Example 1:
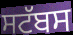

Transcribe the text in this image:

ਸਟੱਬਸ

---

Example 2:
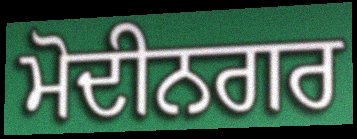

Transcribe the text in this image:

ਮੋਦੀਨਗਰ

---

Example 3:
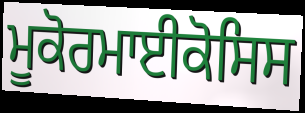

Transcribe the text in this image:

ਮੂਕੋਰਮਾਈਕੋਸਿਸ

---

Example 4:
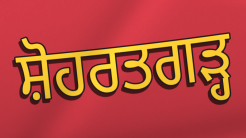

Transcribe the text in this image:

ਸ਼ੋਹਰਤਗੜ੍ਹ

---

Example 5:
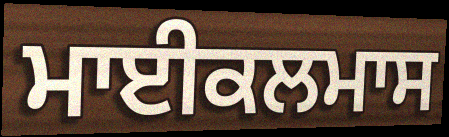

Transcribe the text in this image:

ਮਾਈਕਲਮਾਸ